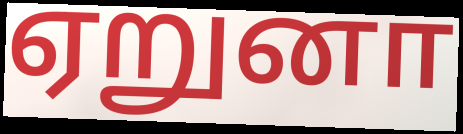
ஏறுனா